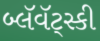
બ્લૅવૅટ્સ્કી